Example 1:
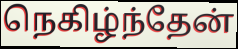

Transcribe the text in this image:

நெகிழ்ந்தேன்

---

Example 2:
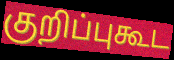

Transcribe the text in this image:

குறிப்புகூட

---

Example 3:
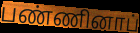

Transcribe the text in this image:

பண்ணினாப்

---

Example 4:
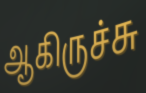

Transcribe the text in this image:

ஆகிருச்சு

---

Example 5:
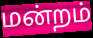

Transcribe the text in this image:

மன்றம்